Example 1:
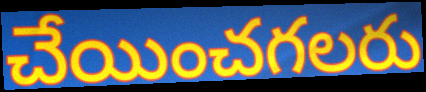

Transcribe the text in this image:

చేయించగలరు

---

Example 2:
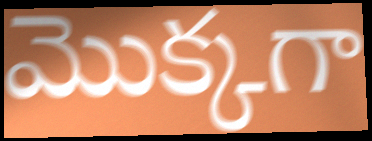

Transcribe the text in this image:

మొక్కగా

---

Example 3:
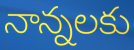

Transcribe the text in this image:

నాన్నలకు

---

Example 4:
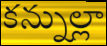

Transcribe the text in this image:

కన్నుల్లా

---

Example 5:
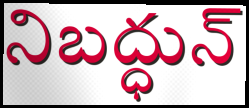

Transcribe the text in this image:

నిబద్ధున్